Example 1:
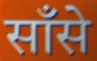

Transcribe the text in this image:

साँसे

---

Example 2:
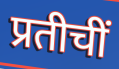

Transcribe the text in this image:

प्रतीचीं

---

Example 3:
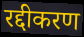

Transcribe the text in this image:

रद्दीकरण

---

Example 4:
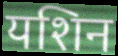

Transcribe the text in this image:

यशिन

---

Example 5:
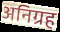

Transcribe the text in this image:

अनिग्रह